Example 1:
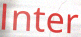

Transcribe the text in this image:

Inter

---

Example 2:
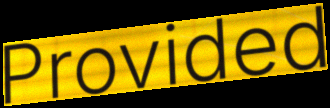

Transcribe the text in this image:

Provided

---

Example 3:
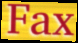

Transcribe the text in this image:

Fax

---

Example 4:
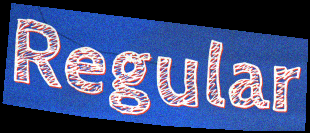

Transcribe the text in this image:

Regular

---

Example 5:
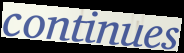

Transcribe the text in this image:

continues